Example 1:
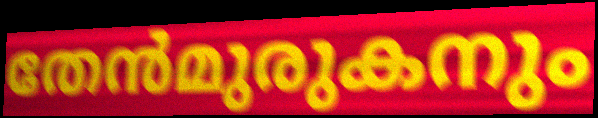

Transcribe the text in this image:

തേൻമുരുകനും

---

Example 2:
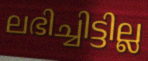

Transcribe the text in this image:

ലഭിച്ചിട്ടില്ല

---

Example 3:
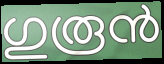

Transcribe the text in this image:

ഗുരൂൻ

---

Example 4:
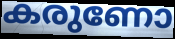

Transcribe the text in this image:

കരുണോ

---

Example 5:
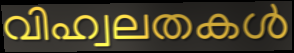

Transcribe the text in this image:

വിഹ്വലതകൾ